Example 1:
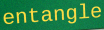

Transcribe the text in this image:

entangle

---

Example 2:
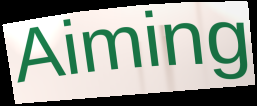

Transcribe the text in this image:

Aiming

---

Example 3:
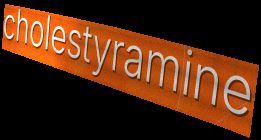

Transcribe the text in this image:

cholestyramine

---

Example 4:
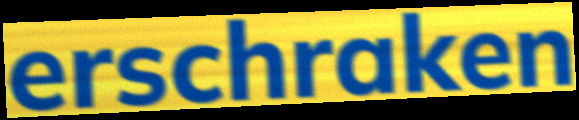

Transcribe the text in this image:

erschraken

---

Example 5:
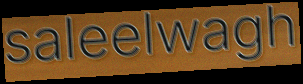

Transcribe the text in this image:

saleelwagh